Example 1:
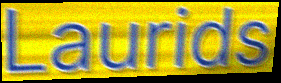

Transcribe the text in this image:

Laurids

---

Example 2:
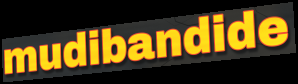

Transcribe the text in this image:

mudibandide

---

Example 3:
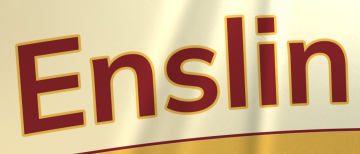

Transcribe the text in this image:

Enslin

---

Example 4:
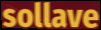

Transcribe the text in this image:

sollave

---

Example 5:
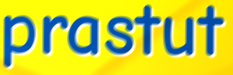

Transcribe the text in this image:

prastut